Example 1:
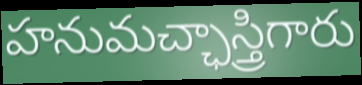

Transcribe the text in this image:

హనుమచ్ఛాస్త్రిగారు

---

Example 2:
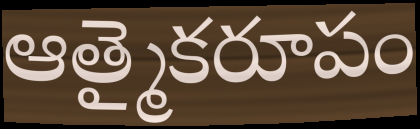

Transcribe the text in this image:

ఆత్మైకరూపం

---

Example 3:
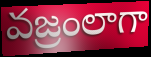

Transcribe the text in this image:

వజ్రంలాగా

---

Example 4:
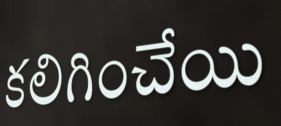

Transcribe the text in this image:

కలిగించేయి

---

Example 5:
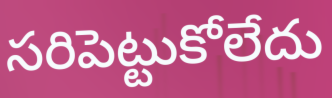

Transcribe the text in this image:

సరిపెట్టుకోలేదు